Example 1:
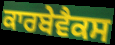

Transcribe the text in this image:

ਕਾਰਬੇਵੈਕਸ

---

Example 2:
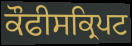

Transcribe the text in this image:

ਕੌਫੀਸਕ੍ਰਿਪਟ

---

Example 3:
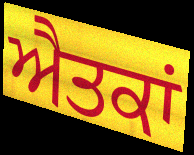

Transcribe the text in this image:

ਐਤਕਾਂ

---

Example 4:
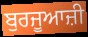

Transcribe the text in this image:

ਬੁਰਜੂਆਜ਼ੀ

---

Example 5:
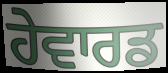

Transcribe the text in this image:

ਹੇਵਾਰਡ